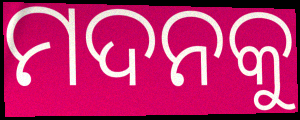
ମଦନକୁ